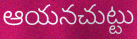
ఆయనచుట్టు